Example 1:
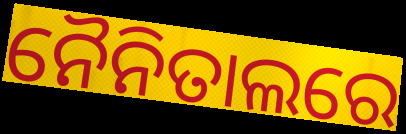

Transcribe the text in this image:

ନୈନିତାଲରେ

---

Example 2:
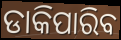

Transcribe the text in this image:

ଡାକିପାରିବ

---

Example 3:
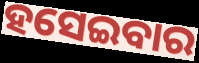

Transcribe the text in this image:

ହସେଇବାର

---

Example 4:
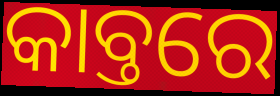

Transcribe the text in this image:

କାବ୍ତରେ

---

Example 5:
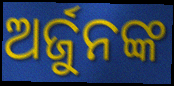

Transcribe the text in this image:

ଅର୍ଜୁନଙ୍କ